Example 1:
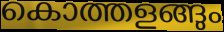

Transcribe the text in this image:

കൊത്തളങ്ങും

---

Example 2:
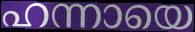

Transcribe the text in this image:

ഹന്നായെ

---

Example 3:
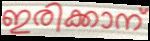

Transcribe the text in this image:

ഇരിക്കാന്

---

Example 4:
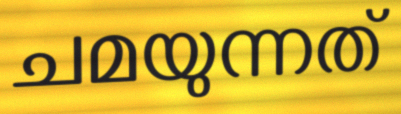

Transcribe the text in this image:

ചമയുന്നത്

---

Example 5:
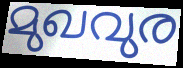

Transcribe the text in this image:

മുഖവുര